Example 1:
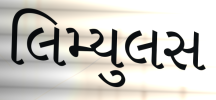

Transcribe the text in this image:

લિમ્યુલસ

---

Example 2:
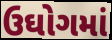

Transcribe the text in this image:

ઉઘોગમાં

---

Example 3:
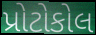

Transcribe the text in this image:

પ્રોટોકોલ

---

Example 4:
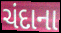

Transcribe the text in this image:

ચંદાના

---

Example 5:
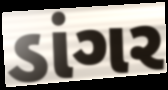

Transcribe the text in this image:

ડાંગર